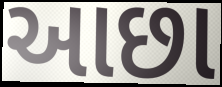
આછા